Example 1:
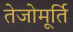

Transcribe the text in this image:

तेजोमूर्ति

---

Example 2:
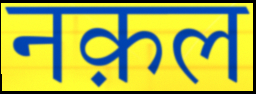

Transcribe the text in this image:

नक़ल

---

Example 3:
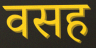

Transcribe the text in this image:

वसह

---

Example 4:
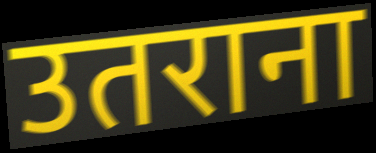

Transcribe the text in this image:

उतराना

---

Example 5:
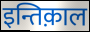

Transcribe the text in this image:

इन्तिक़ाल